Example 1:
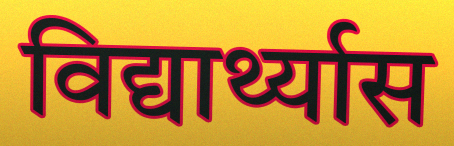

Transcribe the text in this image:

विद्यार्थ्यास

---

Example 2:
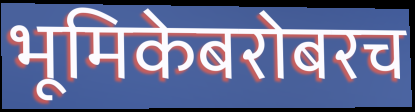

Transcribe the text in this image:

भूमिकेबरोबरच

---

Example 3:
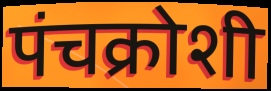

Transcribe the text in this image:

पंचक्रोशी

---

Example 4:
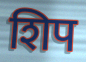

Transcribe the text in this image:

शिप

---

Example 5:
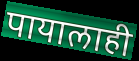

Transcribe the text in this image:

पायालाही